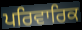
ਪਰਿਵਾਰਿਕ